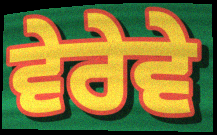
ਵੇਰੇਵੇ